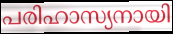
പരിഹാസ്യനായി